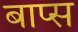
बाप्स